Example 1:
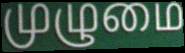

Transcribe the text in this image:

முழுமை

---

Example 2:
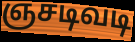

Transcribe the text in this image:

ஞசடிவடி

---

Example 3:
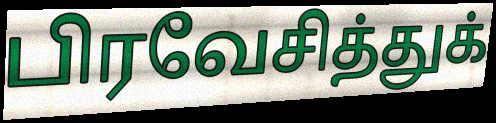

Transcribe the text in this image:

பிரவேசித்துக்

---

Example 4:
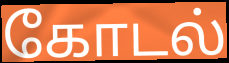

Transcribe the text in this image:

கோடல்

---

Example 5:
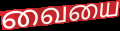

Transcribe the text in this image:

வையை